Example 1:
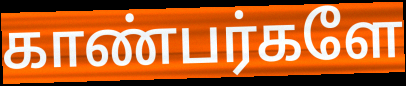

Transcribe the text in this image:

காண்பர்களே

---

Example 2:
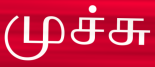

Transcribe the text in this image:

முச்சு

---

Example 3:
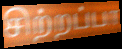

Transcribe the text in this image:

சிற்றப்பா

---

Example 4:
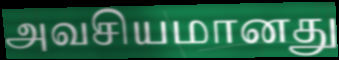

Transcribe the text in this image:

அவசியமானது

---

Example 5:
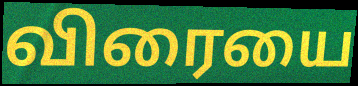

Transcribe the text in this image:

விரையை